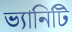
ভ্যানিটি